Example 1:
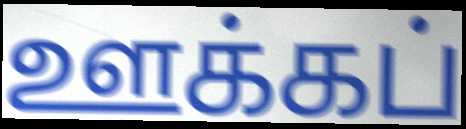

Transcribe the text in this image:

ஊக்கப்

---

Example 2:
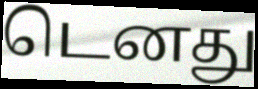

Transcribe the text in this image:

டெனது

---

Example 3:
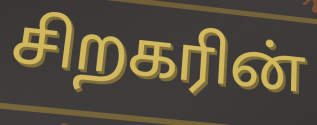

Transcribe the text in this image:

சிறகரின்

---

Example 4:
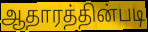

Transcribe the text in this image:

ஆதாரத்தின்படி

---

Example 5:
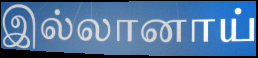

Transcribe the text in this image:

இல்லானாய்